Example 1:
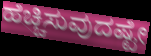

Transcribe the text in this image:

ಹೆಚ್ಚಿಸುವುದಷ್ಟೇ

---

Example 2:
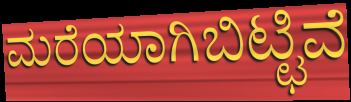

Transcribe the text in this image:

ಮರೆಯಾಗಿಬಿಟ್ಟಿವೆ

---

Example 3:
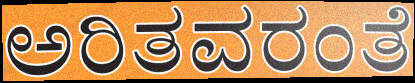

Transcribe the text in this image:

ಅರಿತವರಂತೆ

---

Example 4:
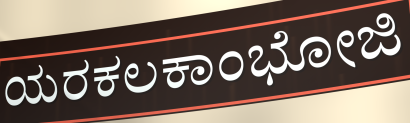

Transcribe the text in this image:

ಯರಕಲಕಾಂಭೋಜಿ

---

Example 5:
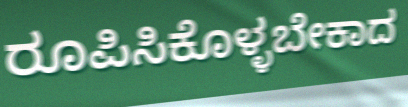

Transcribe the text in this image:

ರೂಪಿಸಿಕೊಳ್ಳಬೇಕಾದ